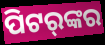
ପିଟର୍‌ଙ୍କର